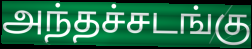
அந்தச்சடங்கு